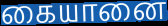
கையானை